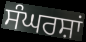
ਸੰਘਰਸ਼ਾਂ